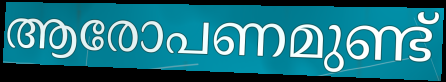
ആരോപണമുണ്ട്